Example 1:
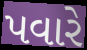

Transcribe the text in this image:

પવારે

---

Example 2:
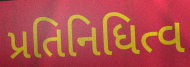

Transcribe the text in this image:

પ્રતિનિધિત્વ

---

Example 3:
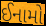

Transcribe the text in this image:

ઈનામો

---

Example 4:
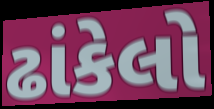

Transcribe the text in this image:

ઢાંકેલો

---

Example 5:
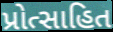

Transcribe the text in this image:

પ્રોત્સાહિત